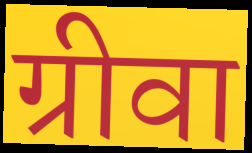
ग्रीवा